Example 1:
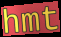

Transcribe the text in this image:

hmt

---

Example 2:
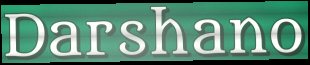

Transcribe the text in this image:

Darshano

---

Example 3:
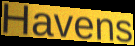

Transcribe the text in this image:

Havens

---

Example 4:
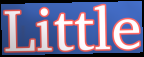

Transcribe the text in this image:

Little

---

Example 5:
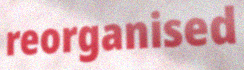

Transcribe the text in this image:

reorganised